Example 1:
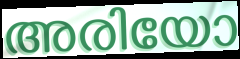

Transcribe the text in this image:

അരിയോ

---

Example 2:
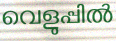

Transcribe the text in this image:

വെളുപ്പിൽ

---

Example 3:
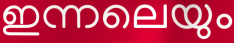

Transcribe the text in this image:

ഇന്നലെയും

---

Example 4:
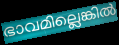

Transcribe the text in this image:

ഭാവമില്ലെങ്കിൽ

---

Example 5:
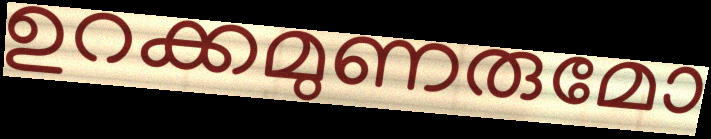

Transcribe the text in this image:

ഉറക്കമുണരുമോ